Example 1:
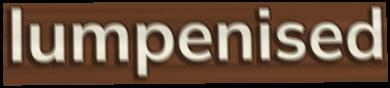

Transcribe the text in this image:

lumpenised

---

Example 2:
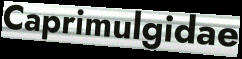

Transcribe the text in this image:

Caprimulgidae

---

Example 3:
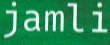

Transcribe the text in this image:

jamli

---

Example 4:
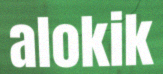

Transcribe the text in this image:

alokik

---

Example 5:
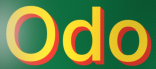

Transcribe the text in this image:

Odo